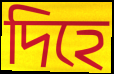
দিহে